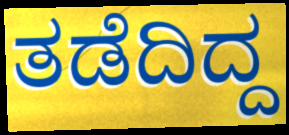
ತಡೆದಿದ್ದ